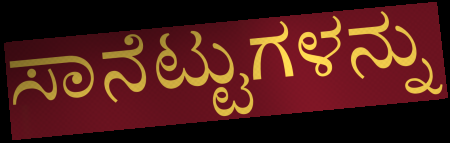
ಸಾನೆಟ್ಟುಗಳನ್ನು